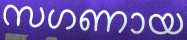
സഗണായ